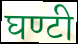
घण्टी